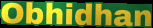
Obhidhan